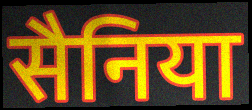
सैनिया